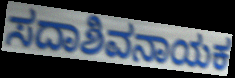
ಸದಾಶಿವನಾಯಕ